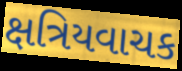
ક્ષત્રિયવાચક